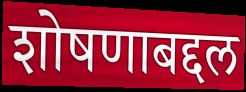
शोषणाबद्दल